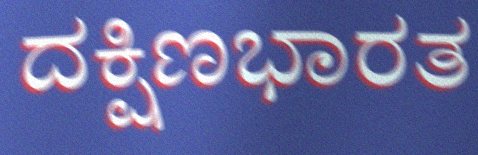
ದಕ್ಷಿಣಭಾರತ